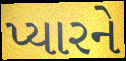
પ્યારને